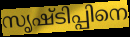
സൃഷ്ടിപ്പിനെ